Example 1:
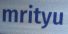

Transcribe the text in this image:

mrityu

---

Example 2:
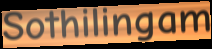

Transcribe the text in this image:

Sothilingam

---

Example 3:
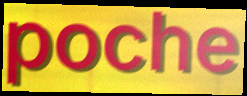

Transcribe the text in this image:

poche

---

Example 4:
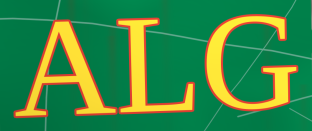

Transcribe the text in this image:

ALG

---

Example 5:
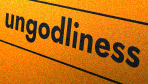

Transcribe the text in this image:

ungodliness